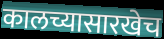
कालच्यासारखेच